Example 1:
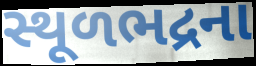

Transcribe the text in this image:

સ્થૂળભદ્રના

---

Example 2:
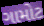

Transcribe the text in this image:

ગામોટ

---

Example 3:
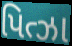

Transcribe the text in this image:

પિત્ઝા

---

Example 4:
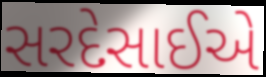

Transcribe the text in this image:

સરદેસાઈએ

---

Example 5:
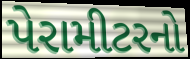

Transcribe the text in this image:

પેરામીટરનો